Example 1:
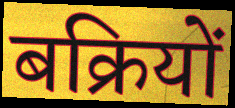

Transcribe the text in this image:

बक्रियों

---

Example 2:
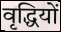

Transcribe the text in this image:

वृद्धियों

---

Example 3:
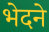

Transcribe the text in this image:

भेदने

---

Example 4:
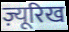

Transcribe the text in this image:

ज़्यूरिख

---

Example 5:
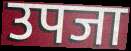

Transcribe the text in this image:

उपजा